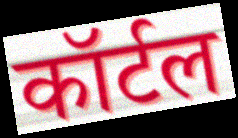
कॉर्टल